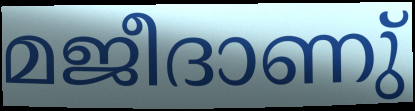
മജീദാണു്